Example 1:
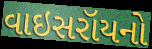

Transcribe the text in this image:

વાઇસરૉયનો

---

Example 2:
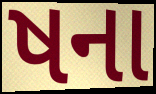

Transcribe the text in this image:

ષના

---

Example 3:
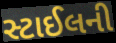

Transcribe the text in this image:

સ્ટાઈલની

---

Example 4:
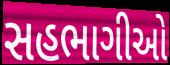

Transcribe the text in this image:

સહભાગીઓ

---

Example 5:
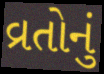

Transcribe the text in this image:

વ્રતોનું